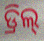
ଡ୍ରିଲ୍